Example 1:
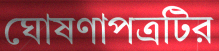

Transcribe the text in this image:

ঘোষণাপত্রটির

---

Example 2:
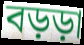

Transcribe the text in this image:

বড়ড়া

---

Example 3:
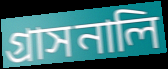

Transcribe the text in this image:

গ্রাসনালি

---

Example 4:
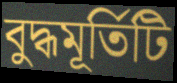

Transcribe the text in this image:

বুদ্ধমূর্তিটি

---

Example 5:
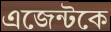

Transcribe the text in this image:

এজেন্টকে